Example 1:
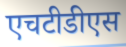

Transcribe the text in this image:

एचटीडीएस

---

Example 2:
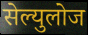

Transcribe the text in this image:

सेल्युलोज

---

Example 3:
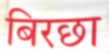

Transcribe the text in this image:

बिरछा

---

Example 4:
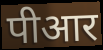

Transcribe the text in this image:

पीआर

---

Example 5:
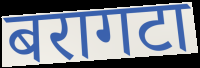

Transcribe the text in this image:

बरागटा